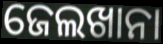
ଜେଲଖାନା